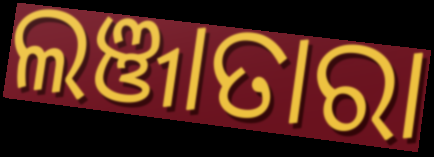
ଲଞ୍ଜାତାରା